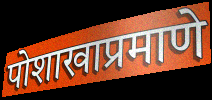
पोशाखाप्रमाणे